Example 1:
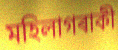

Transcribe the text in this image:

মহিলাগৰাকী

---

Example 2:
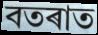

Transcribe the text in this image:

বতৰাত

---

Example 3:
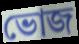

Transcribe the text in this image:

ভোজ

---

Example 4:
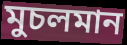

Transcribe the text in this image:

মুচলমান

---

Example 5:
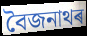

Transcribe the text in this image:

বৈজনাথৰ